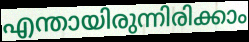
എന്തായിരുന്നിരിക്കാം